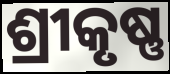
ଶ୍ରୀକୃଷ୍ଣ